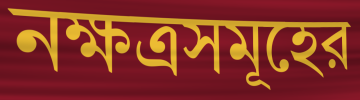
নক্ষত্রসমূহের